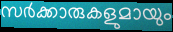
സർക്കാരുകളുമായും